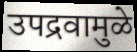
उपद्रवामुळे